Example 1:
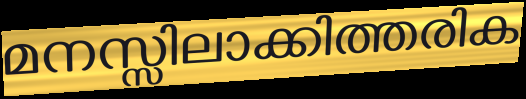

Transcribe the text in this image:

മനസ്സിലാക്കിത്തരിക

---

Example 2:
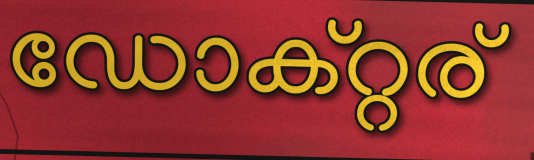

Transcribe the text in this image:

ഡോക്റ്റര്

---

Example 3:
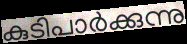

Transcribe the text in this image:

കുടിപാർക്കുന്നു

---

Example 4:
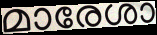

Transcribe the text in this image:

മാരേശാ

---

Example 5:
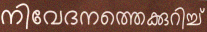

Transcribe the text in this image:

നിവേദനത്തെക്കുറിച്ച്